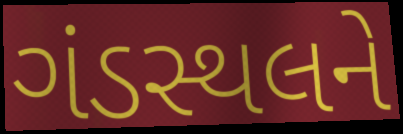
ગંડસ્થલને